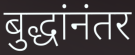
बुद्धांनंतर